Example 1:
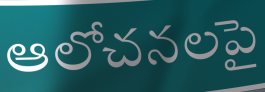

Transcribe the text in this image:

ఆలోచనలపై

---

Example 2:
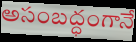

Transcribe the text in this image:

అసంబద్ధంగానే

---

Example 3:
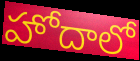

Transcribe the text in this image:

హోదాలో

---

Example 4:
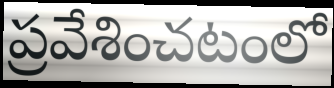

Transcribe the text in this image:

ప్రవేశించటంలో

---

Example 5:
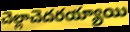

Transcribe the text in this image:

చెల్లాచెదరయ్యాయి